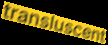
transluscent